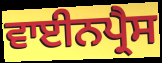
ਵਾਈਨਪ੍ਰੈਸ